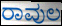
ರಾವುಲ